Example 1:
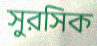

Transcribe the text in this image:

সুরসিক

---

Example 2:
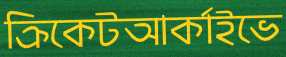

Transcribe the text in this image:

ক্রিকেটআর্কাইভে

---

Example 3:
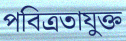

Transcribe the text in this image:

পবিত্রতাযুক্ত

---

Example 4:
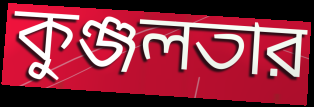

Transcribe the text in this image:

কুঞ্জলতার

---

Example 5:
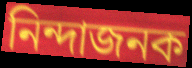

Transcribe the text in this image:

নিন্দাজনক